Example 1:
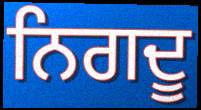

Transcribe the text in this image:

ਨਿਗਦੂ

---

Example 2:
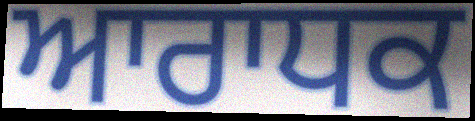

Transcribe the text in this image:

ਆਰਾਧਕ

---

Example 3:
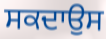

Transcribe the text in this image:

ਸਕਦਾਉਸ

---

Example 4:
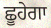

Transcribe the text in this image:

ਛੂਹੇਗਾ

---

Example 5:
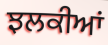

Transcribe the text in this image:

ਝਲਕੀਆਂ